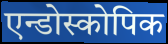
एन्डोस्कोपिक